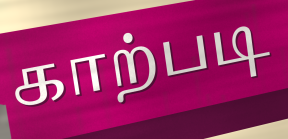
காற்படி